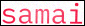
samai